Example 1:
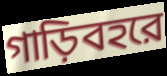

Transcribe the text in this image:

গাড়িবহরে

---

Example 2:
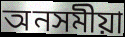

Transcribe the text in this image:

অনসমীয়া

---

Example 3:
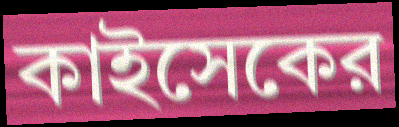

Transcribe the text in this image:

কাইসেকের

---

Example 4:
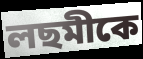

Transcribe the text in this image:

লছমীকে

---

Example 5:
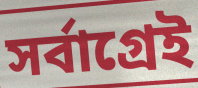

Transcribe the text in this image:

সর্বাগ্রেই